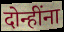
दोन्हींना